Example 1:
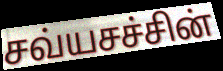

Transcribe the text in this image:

சவ்யசச்சின்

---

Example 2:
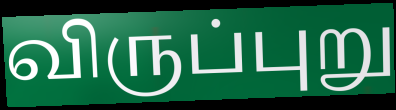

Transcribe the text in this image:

விருப்புறு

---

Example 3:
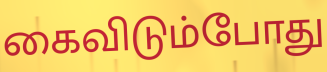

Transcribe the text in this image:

கைவிடும்போது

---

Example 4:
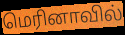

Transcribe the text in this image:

மெரினாவில்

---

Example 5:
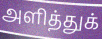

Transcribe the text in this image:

அளித்துக்